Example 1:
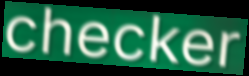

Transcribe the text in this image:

checker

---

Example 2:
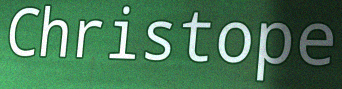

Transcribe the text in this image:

Christope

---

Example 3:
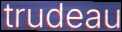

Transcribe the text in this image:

trudeau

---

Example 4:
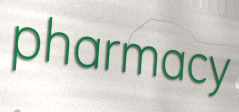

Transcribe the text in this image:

pharmacy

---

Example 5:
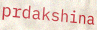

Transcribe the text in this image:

prdakshina